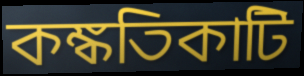
কঙ্কতিকাটি